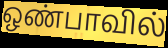
ஒண்பாவில்